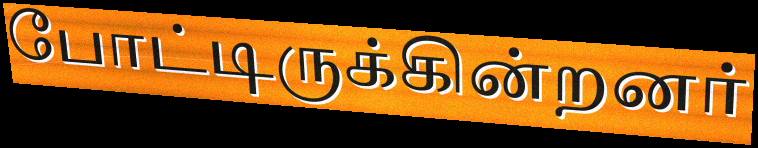
போட்டிருக்கின்றனர்